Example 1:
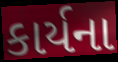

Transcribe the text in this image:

કાર્યના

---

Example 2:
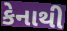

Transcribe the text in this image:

કેનાથી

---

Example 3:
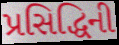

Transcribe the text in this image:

પ્રસિદ્ધિની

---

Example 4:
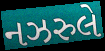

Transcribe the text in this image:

નઝરુલે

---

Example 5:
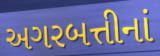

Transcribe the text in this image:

અગરબત્તીનાં